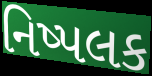
નિષ્પલક